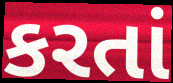
કરતાં